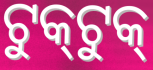
ଟୁକ୍‌ଟୁକ୍